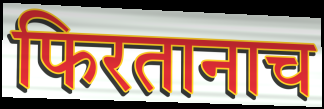
फिरतानाच